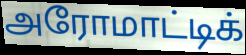
அரோமாட்டிக்